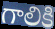
గాలికి